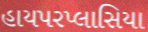
હાયપરપ્લાસિયા